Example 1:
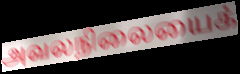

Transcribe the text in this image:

அவலநிலையைக்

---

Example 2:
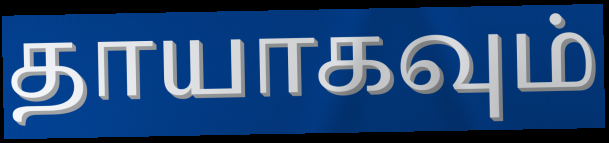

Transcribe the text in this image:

தாயாகவும்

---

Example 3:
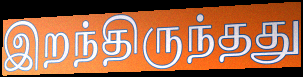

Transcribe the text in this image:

இறந்திருந்தது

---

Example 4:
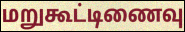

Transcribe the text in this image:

மறுகூட்டிணைவு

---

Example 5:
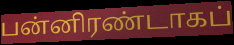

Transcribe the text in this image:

பன்னிரண்டாகப்